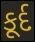
કૂર્દ